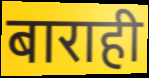
बाराही